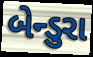
બેન્ડુરા